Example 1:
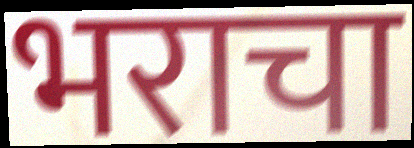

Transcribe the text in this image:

भराचा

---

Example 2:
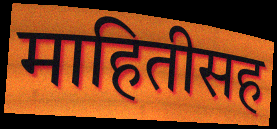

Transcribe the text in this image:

माहितीसह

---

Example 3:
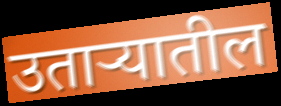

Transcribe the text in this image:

उताऱ्यातील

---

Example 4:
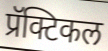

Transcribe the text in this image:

प्रॅक्टिकल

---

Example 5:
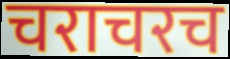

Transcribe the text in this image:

चराचरच